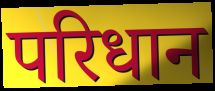
परिधान